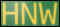
HNW